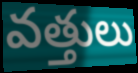
వత్తులు